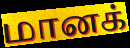
மானக்